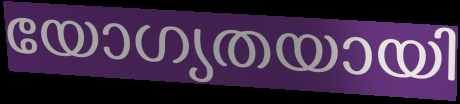
യോഗ്യതയായി